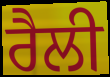
ਰੈਲੀ